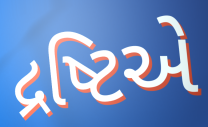
દ્રષ્ટિએ